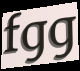
fgg